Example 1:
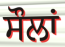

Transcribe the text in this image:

ਸੌਲਾਂ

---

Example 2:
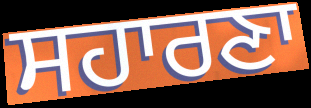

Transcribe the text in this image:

ਸਹਾਰਣਾ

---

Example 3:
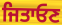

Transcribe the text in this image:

ਜਿਤਾਓਣ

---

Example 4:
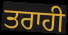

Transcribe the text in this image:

ਤਰਾਹੀ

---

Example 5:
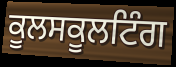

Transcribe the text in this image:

ਕੂਲਸਕੂਲਟਿੰਗ